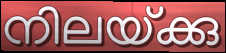
നിലയ്‌ക്കു